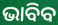
ଭାବିବ